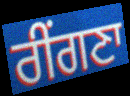
ਰੀਂਗਣਾ